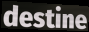
destine